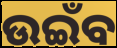
ଉଇଁବ